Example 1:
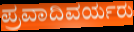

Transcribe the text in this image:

ಪ್ರವಾದಿವರ್ಯರು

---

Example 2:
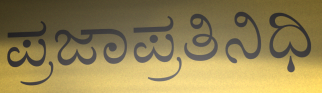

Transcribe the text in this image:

ಪ್ರಜಾಪ್ರತಿನಿಧಿ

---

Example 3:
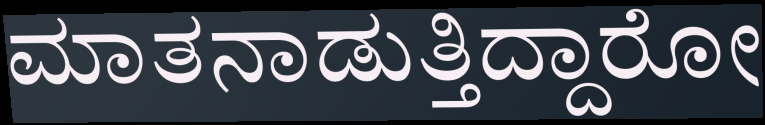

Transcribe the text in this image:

ಮಾತನಾಡುತ್ತಿದ್ದಾರೋ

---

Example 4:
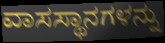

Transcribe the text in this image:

ವಾಸಸ್ಥಾನಗಳನ್ನು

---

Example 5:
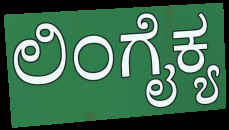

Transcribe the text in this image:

ಲಿಂಗೈಕ್ಯ